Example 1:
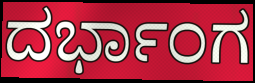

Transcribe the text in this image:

ದರ್ಭಾಂಗ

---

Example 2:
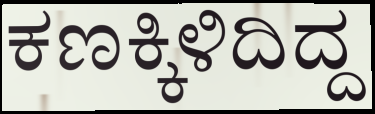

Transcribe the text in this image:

ಕಣಕ್ಕಿಳಿದಿದ್ದ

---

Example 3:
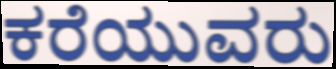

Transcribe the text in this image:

ಕರೆಯುವರು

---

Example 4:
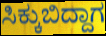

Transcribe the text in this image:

ಸಿಕ್ಕುಬಿದ್ದಾಗ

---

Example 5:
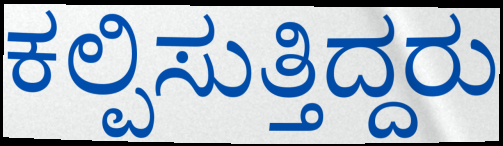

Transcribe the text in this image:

ಕಲ್ಪಿಸುತ್ತಿದ್ದರು